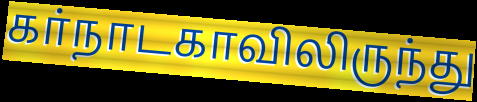
கர்நாடகாவிலிருந்து